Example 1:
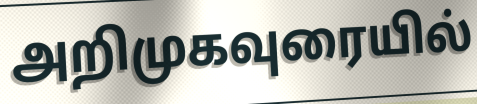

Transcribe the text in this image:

அறிமுகவுரையில்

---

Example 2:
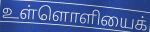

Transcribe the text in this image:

உள்ளொளியைக்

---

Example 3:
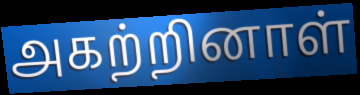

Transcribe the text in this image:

அகற்றினாள்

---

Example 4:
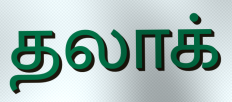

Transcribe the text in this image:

தலாக்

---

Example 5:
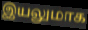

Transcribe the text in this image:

இயலுமாக